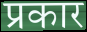
प्रकार